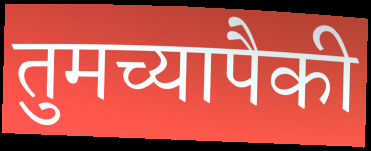
तुमच्यापैकी